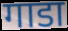
गाडा